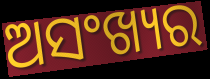
ଅସଂଖ୍ୟର